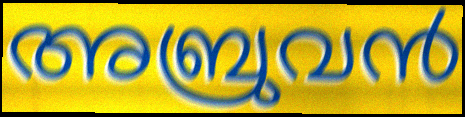
അബ്രുവൻ